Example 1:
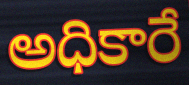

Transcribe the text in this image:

అధికారే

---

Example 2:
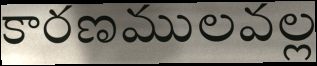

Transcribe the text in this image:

కారణములవల్ల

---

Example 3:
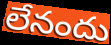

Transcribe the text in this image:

లేనందు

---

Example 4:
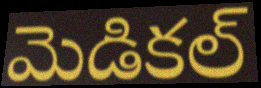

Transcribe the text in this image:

మెడికల్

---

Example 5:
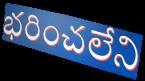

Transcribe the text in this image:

భరించలేని